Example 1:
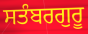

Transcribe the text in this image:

ਸਤੰਬਰਗੁਰੂ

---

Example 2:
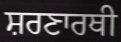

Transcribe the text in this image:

ਸ਼ਰਣਾਰਥੀ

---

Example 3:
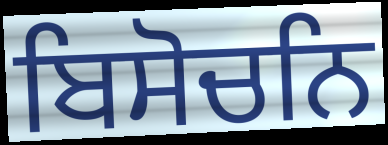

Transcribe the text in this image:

ਬਿਸੋਚਨਿ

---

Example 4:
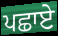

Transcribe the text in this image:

ਪਛਾਏ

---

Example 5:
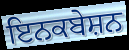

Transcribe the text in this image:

ਇਨਕਬੇਸ਼ਨ